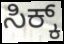
ಸಿಕ್ಕ್